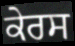
ਕੇਰਸ